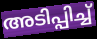
അടിപ്പിച്ച്